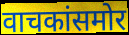
वाचकांसमोर